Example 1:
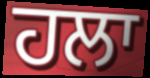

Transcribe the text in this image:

ਹਲਾ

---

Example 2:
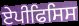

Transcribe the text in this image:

ਏਪੀਫਿਸਿਸ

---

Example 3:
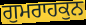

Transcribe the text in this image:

ਗੁਮਰਾਹਕੁਨ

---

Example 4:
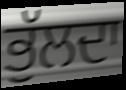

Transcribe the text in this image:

ਭੁੱਲਦਾ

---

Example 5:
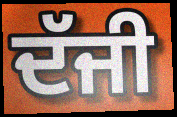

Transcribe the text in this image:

ਦੱਜੀ